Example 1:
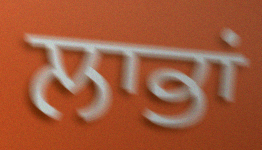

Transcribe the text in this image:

ਲਾਭਾਂ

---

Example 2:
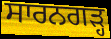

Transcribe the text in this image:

ਸਾਰਨਗੜ੍ਹ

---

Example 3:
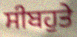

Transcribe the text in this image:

ਸੀਬਹੁਤੇ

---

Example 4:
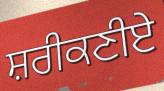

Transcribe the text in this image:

ਸ਼ਰੀਕਣੀਏ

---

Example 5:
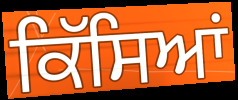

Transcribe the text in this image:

ਕਿੱਸਿਆਂ